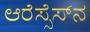
ಆರೆಸ್ಸೆಸ್‌ನ